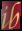
ib